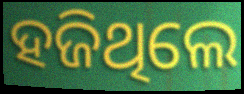
ହଜିଥିଲେ